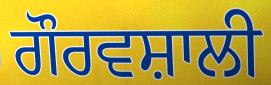
ਗੌਰਵਸ਼ਾਲੀ